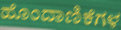
ಹೊಂದಾಣಿಕೆಗಳ